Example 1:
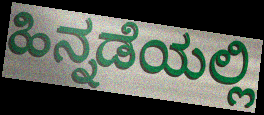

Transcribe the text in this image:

ಹಿನ್ನಡೆಯಲ್ಲಿ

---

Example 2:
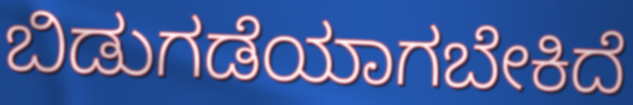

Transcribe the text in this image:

ಬಿಡುಗಡೆಯಾಗಬೇಕಿದೆ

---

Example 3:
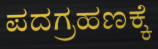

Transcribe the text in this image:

ಪದಗ್ರಹಣಕ್ಕೆ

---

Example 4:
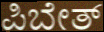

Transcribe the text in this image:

ಪಿಬೇತ್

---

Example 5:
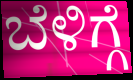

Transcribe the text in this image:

ಬೆಳಿಗ್ಗೆ